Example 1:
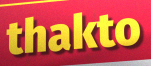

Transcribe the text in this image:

thakto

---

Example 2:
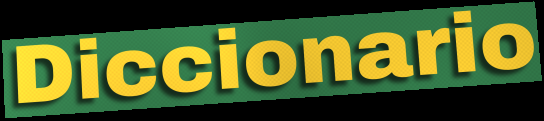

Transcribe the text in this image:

Diccionario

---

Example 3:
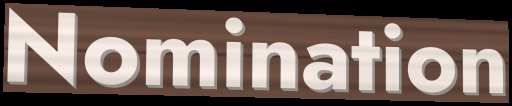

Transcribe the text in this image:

Nomination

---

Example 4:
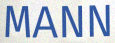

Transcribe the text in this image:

MANN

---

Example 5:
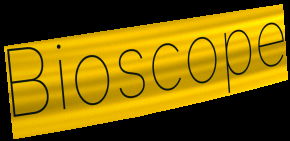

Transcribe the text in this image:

Bioscope